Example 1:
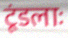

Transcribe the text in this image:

टूंडलाः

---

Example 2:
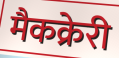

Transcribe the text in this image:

मैकक्रेरी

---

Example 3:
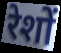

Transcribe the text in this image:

रेशों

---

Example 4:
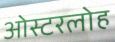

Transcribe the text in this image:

ओस्टरलोह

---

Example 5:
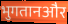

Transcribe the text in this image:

भुगतानऔर